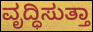
ವೃದ್ಧಿಸುತ್ತಾ